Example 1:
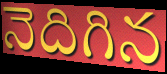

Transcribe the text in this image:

నెదిగిన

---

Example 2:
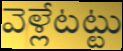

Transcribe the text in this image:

వెళ్లేటట్టు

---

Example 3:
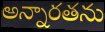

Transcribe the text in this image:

అన్నారతను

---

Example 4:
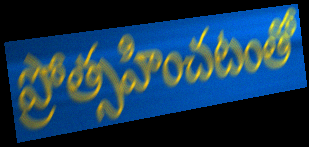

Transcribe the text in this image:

ప్రోత్సహించటంతో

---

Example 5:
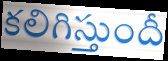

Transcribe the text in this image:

కలిగిస్తుందీ